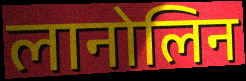
लानोलिन